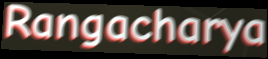
Rangacharya